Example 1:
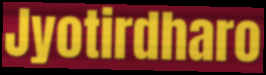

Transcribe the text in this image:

Jyotirdharo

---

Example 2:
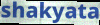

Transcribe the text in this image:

shakyata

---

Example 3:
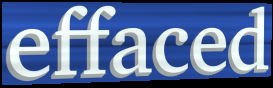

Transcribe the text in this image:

effaced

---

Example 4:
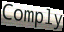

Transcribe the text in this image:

Comply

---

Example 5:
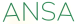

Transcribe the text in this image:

ANSA